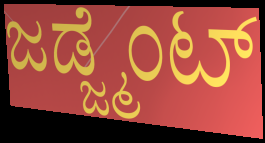
ಜಡ್ಜ್ಮೆಂಟ್